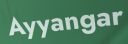
Ayyangar